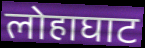
लोहाघाट